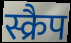
स्क्रैप